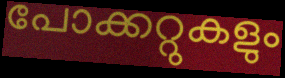
പോക്കറ്റുകളും